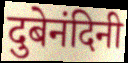
दुबेनंदिनी